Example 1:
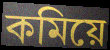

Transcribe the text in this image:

কমিয়ে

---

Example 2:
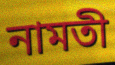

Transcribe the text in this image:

নামতী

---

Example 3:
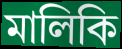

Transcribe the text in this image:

মালিকি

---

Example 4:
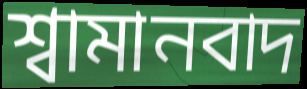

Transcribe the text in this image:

শ্বামানবাদ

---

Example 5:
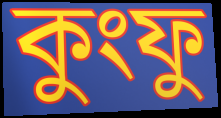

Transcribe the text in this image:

কুংফু